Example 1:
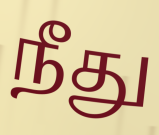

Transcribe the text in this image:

நீது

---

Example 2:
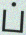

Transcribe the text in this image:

ப்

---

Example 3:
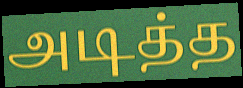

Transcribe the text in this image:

அடித்த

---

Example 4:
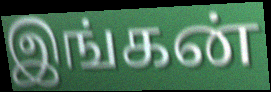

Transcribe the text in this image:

இங்கன்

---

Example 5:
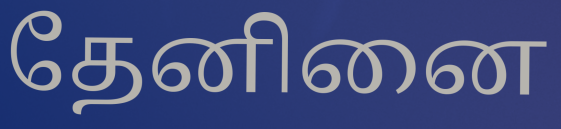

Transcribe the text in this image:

தேனினை